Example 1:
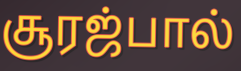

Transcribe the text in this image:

சூரஜ்பால்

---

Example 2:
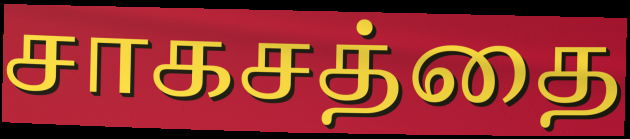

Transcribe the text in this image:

சாகசத்தை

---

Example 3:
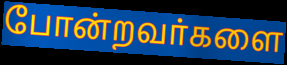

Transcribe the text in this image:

போன்றவர்களை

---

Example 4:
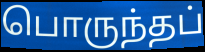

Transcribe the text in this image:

பொருந்தப்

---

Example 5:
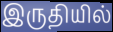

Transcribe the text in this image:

இருதியில்